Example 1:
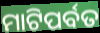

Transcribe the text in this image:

ମାଟିପର୍ବତ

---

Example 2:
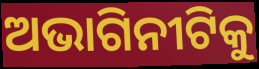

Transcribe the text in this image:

ଅଭାଗିନୀଟିକୁ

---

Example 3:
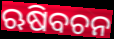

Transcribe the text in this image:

ଋଷିବଚନ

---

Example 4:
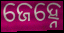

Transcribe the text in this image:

ଜେହ୍ନେ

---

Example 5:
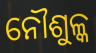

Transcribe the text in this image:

ନୌଶୁଳ୍କ